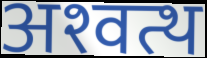
अश्वत्थ